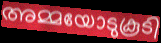
അമ്മയോടുകൂടി